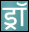
ड्रॉ